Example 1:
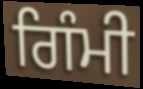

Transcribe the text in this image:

ਗਿੰਮੀ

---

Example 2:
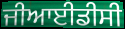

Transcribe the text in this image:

ਜੀਆਈਡੀਸੀ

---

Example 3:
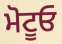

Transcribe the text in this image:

ਮੋਟੂਓ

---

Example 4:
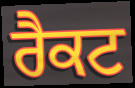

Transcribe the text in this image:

ਰੈਕਟ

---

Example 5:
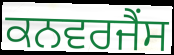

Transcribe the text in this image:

ਕਨਵਰਜੈਂਸ